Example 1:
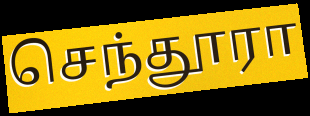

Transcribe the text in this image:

செந்தூரா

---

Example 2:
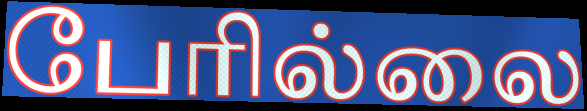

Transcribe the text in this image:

பேரில்லை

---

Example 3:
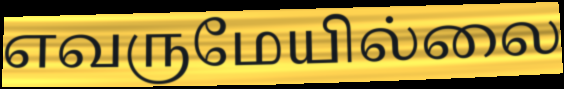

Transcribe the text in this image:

எவருமேயில்லை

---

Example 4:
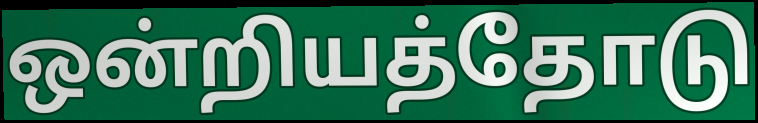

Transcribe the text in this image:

ஒன்றியத்தோடு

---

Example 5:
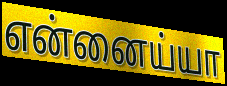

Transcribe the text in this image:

என்னைய்யா